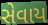
સેવાય